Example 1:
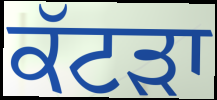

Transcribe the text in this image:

ਕੱਟੜਾ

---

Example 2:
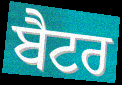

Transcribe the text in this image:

ਬੈਟਰ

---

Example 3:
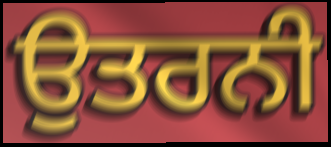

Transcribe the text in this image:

ਉਤਰਨੀ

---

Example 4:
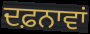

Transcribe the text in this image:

ਦਫ਼ਨਾਵਾਂ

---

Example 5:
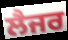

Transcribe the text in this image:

ਲੈਜਰ